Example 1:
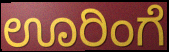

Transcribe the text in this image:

ಊರಿಂಗೆ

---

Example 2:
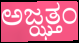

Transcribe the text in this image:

ಅಜ್ಝತ್ತಂ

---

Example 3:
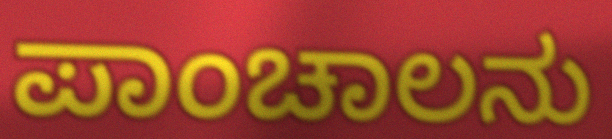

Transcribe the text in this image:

ಪಾಂಚಾಲನು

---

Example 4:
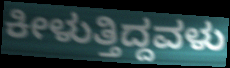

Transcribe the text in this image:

ಕೀಳುತ್ತಿದ್ದವಳು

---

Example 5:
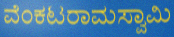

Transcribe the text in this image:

ವೆಂಕಟರಾಮಸ್ವಾಮಿ